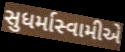
સુધર્માસ્વામીએ